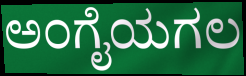
ಅಂಗೈಯಗಲ